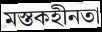
মস্তকহীনতা